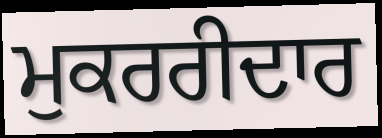
ਮੁਕਰਰੀਦਾਰ